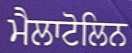
ਮੈਲਾਟੋਲਿਨ